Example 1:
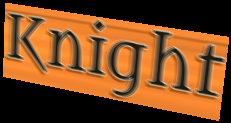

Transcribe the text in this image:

Knight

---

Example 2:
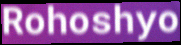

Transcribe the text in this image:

Rohoshyo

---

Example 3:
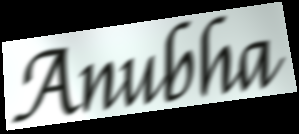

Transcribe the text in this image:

Anubha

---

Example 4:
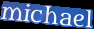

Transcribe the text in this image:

michael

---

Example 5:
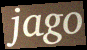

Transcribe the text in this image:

jago